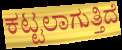
ಕಟ್ಟಲಾಗುತ್ತಿದೆ